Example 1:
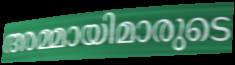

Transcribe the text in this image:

അമ്മായിമാരുടെ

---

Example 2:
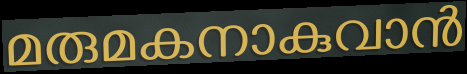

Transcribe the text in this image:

മരുമകനാകുവാൻ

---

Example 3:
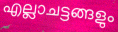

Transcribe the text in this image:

എല്ലാചട്ടങ്ങളും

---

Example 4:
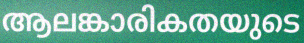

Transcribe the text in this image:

ആലങ്കാരികതയുടെ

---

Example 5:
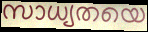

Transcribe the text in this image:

സാധ്യതയെ